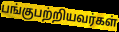
பங்குபற்றியவர்கள்